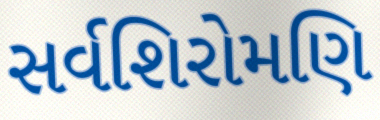
સર્વશિરોમણિ